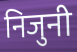
निजुनी